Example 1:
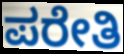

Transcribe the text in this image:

ಪರೇತಿ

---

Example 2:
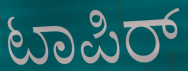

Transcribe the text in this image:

ಟಾಪಿರ್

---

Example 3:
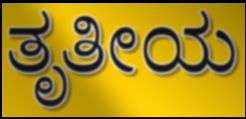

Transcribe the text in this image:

ತೃತೀಯ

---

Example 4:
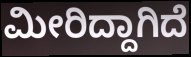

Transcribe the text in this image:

ಮೀರಿದ್ದಾಗಿದೆ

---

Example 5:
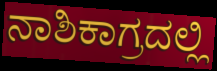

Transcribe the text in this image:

ನಾಶಿಕಾಗ್ರದಲ್ಲಿ